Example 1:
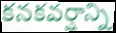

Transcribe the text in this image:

కనకవర్షాన్ని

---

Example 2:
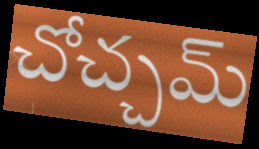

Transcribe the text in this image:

చోచ్చమ్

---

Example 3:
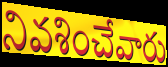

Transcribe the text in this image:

నివశించేవారు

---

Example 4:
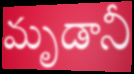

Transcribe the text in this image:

మృడానీ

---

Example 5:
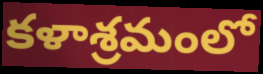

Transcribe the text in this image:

కళాశ్రమంలో